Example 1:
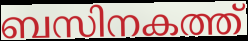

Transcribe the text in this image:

ബസിനകത്ത്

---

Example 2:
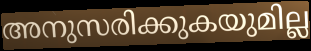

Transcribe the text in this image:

അനുസരിക്കുകയുമില്ല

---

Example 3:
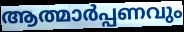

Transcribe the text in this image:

ആത്മാർപ്പണവും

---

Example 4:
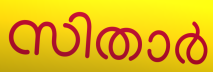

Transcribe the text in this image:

സിതാർ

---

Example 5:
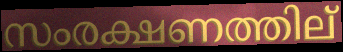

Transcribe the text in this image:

സംരക്ഷണത്തില്